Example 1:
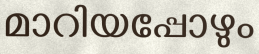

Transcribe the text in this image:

മാറിയപ്പോഴും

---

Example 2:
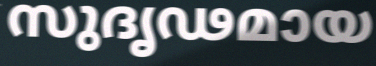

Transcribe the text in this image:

സുദൃഢമായ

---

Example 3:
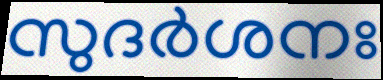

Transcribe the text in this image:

സുദർശനഃ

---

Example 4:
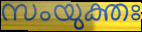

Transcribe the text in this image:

സംയുക്തഃ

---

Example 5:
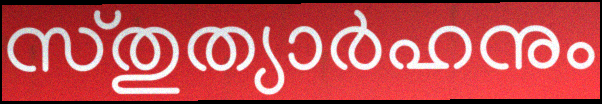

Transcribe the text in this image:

സ്തുത്യാർഹനും